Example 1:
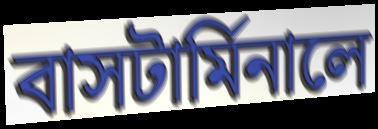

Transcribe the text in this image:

বাসটার্মিনালে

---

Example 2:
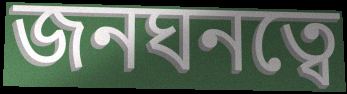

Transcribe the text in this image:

জনঘনত্বে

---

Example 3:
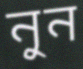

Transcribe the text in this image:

নুন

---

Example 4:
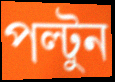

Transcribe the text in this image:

পল্টুন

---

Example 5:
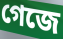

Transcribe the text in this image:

গেজে